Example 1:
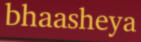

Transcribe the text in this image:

bhaasheya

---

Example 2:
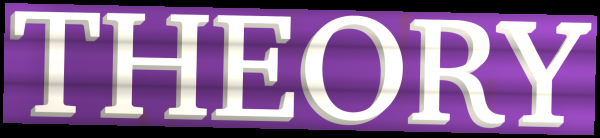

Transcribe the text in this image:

THEORY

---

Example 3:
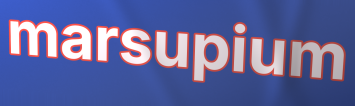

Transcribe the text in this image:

marsupium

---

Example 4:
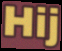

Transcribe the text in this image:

Hij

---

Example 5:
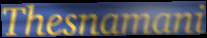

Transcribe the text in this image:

Thesnamani